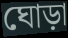
ঘোড়া